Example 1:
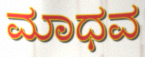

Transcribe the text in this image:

ಮಾಧವ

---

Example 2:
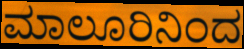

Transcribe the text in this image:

ಮಾಲೂರಿನಿಂದ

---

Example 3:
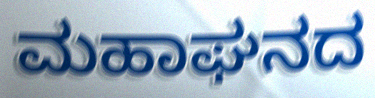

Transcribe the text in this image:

ಮಹಾಘನದ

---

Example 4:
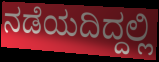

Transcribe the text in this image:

ನಡೆಯದಿದ್ದಲ್ಲಿ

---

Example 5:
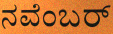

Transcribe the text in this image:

ನವೆಂಬರ್